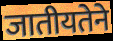
जातीयतेने